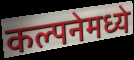
कल्पनेमध्ये